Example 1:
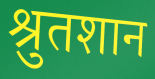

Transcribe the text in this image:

श्रुतशान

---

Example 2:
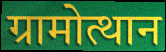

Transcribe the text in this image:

ग्रामोत्थान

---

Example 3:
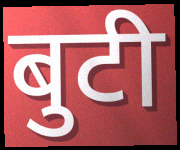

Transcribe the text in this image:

बुटी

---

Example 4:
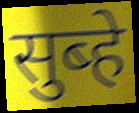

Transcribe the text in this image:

सुब्हे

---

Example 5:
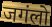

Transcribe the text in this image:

जगंलो